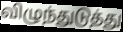
விழுந்துடுத்து